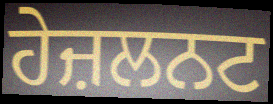
ਹੇਜ਼ਲਨਟ